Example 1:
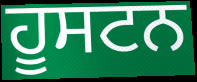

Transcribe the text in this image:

ਹੂਸਟਨ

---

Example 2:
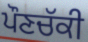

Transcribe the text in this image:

ਪੌਣਚੱਕੀ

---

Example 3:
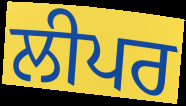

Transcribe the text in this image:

ਲੀਪਰ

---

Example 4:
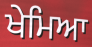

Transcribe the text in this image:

ਖੇਮਿਆ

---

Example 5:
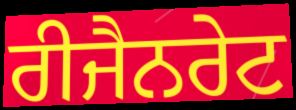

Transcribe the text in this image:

ਰੀਜੈਨਰੇਟ